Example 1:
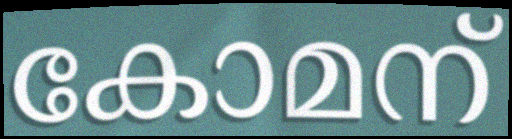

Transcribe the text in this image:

കോമന്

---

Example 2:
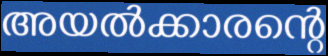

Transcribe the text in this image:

അയൽക്കാരന്റെ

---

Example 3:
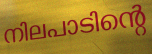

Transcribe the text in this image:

നിലപാടിന്റെ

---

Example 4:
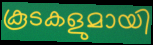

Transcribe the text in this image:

കൂടകളുമായി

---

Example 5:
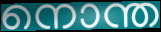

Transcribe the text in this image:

നൊന്ത